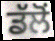
ਡੱਲੋਂ